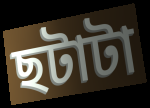
ছটাটা